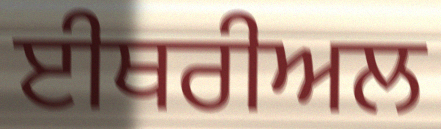
ਈਥਰੀਅਲ